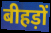
बीहड़ों